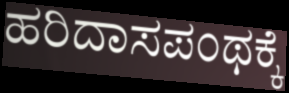
ಹರಿದಾಸಪಂಥಕ್ಕೆ